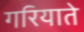
गरियाते